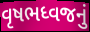
વૃષભધ્વજનું